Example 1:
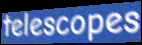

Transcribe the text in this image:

telescopes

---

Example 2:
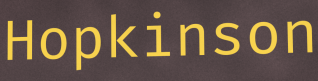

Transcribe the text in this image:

Hopkinson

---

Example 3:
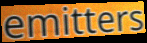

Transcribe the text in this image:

emitters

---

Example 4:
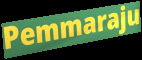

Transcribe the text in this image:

Pemmaraju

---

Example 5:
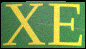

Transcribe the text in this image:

XE